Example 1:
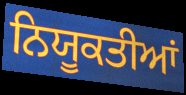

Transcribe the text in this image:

ਨਿਯੂਕਤੀਆਂ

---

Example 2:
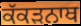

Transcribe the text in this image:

ਕੱਕੜਨਾਥ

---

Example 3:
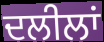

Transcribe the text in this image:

ਦਲੀਲਾਂ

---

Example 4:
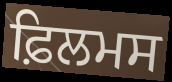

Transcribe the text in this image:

ਫ਼ਿਲਮਸ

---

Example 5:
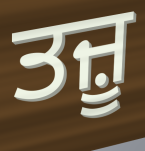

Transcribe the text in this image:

ਤਜ਼ੂ